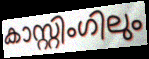
കാസ്റ്റിംഗിലും